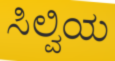
ಸಿಲ್ವಿಯ